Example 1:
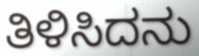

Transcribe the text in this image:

ತಿಳಿಸಿದನು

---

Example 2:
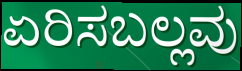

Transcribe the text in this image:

ಏರಿಸಬಲ್ಲವು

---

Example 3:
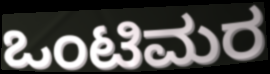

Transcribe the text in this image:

ಒಂಟಿಮರ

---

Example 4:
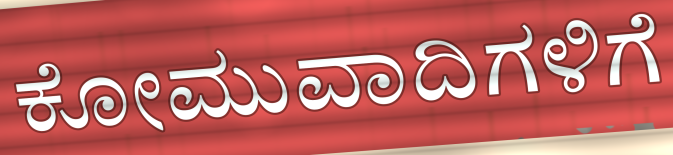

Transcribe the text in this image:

ಕೋಮುವಾದಿಗಳಿಗೆ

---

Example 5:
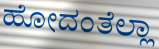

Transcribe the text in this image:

ಹೋದಂತೆಲ್ಲಾ